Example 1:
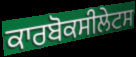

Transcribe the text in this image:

ਕਾਰਬੋਕਸੀਲੇਟਸ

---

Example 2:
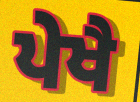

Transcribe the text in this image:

ਪੇਖੈ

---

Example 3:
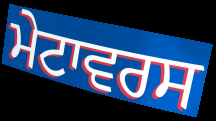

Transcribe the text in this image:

ਮੇਟਾਵਰਸ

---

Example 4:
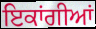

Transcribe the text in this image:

ਇਕਾਂਗੀਆਂ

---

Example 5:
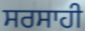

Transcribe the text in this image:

ਸਰਸਾਹੀ